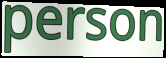
person